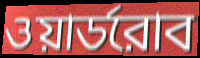
ওয়ার্ডরোব